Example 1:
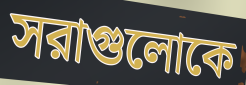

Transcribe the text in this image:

সরাগুলোকে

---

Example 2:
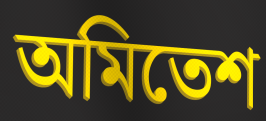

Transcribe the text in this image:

অমিতেশ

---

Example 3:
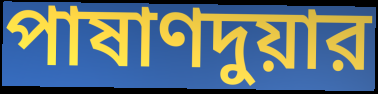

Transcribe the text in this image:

পাষাণদুয়ার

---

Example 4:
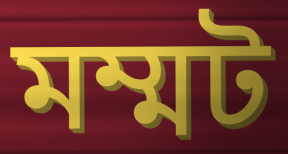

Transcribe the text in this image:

মম্মট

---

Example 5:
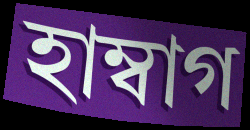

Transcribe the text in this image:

হাম্বাগ